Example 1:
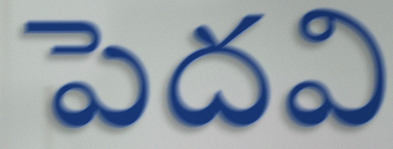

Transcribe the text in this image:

పెదవి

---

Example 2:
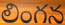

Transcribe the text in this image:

లింగన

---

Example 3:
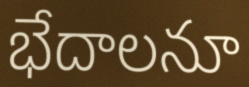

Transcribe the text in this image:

భేదాలనూ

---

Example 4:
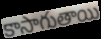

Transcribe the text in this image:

కాసాగుతాయి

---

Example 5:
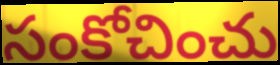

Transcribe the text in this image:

సంకోచించు